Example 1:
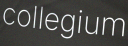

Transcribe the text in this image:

collegium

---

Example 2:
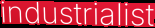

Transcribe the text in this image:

industrialist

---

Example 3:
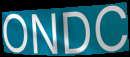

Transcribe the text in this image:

ONDC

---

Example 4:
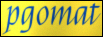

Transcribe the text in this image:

pgomat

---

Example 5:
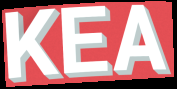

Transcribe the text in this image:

KEA